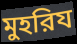
মুহরিয